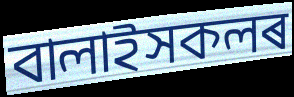
বালাইসকলৰ